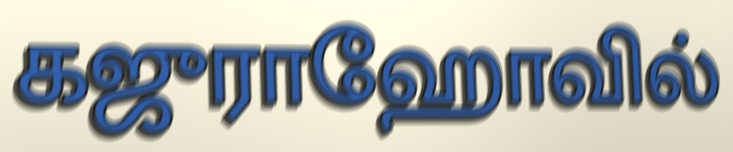
கஜுராஹோவில்